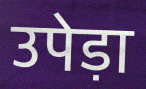
उपेड़ा